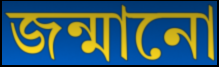
জন্মানো